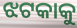
ଝଟକାକୁ